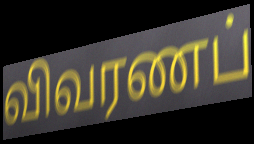
விவரணப்